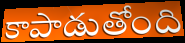
కాపాడుతోంది